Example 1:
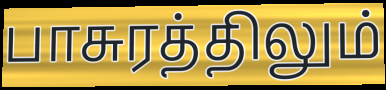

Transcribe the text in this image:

பாசுரத்திலும்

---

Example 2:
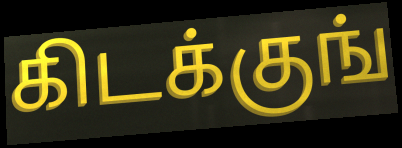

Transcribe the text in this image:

கிடக்குங்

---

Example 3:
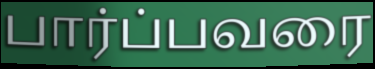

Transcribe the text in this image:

பார்ப்பவரை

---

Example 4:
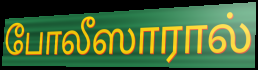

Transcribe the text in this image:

போலீஸாரால்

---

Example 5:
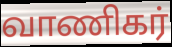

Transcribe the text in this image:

வாணிகர்